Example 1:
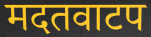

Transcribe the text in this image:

मदतवाटप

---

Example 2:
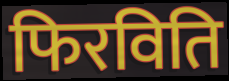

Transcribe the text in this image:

फिरविति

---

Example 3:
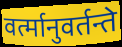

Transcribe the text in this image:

वर्त्मानुवर्तन्ते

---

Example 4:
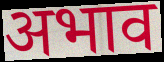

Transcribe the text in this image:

अभाव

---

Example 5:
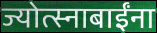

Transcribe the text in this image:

ज्योत्स्नाबाईंना